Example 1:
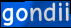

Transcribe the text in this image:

gondii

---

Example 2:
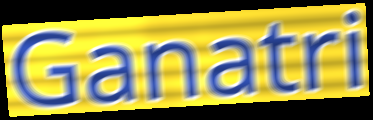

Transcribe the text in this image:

Ganatri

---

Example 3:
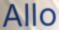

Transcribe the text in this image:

Allo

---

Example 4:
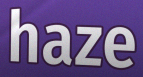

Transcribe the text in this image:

haze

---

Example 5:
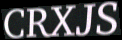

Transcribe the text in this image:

CRXJS